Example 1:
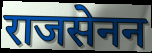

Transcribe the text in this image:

राजसेनन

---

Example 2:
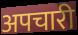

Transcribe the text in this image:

अपचारी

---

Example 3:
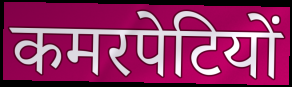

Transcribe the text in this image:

कमरपेटियों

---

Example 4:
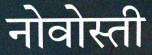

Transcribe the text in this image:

नोवोस्ती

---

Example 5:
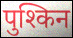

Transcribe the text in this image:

पुश्किन